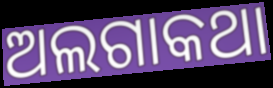
ଅଲଗାକଥା